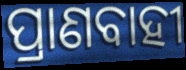
ପ୍ରାଣବାହୀ